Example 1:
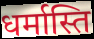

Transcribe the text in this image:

धर्मास्ति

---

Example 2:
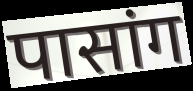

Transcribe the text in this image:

पासांग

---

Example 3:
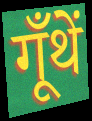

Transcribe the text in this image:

गूँथें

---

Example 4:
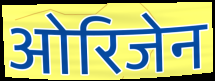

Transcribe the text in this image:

ओरिजेन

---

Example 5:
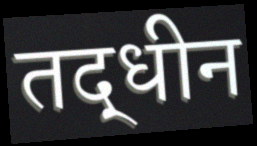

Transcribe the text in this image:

तद्धीन